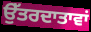
ਉੱਤਰਦਾਤਾਵਾਂ